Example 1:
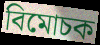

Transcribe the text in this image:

বিমোচক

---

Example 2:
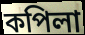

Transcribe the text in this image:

কপিলা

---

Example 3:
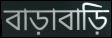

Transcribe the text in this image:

বাড়াবাড়ি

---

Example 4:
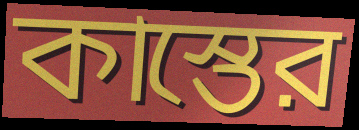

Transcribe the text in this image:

কাস্তের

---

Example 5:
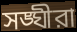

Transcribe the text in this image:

সঙ্ঘীরা